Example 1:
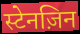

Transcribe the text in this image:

स्टेनज़िन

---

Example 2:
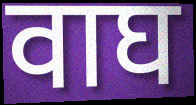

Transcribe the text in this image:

वाघ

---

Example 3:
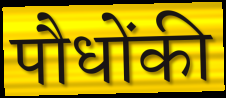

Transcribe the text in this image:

पौधोंकी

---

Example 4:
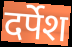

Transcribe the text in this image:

दर्पेश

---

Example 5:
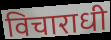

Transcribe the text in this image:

विचाराधी